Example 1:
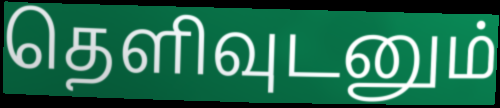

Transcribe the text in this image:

தெளிவுடனும்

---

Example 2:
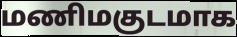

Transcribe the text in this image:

மணிமகுடமாக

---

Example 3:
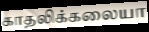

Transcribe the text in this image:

காதலிக்கலையா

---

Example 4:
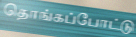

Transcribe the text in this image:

தொங்கப்போட்டு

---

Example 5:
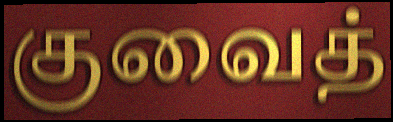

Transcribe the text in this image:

குவைத்